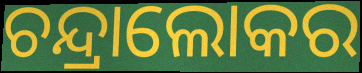
ଚନ୍ଦ୍ରାଲୋକର